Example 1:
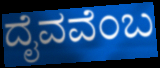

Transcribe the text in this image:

ದೈವವೆಂಬ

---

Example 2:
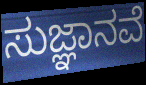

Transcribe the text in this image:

ಸುಜ್ಞಾನವೆ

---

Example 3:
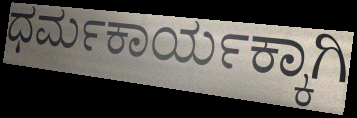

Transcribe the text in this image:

ಧರ್ಮಕಾರ್ಯಕ್ಕಾಗಿ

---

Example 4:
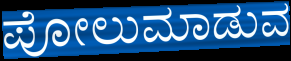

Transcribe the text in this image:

ಪೋಲುಮಾಡುವ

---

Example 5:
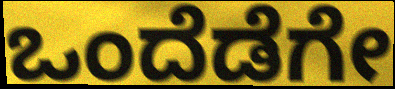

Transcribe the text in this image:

ಒಂದೆಡೆಗೇ